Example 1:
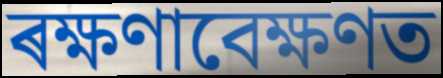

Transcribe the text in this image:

ৰক্ষণাবেক্ষণত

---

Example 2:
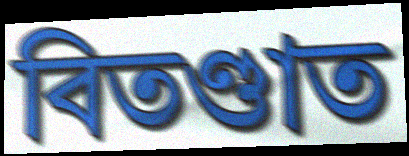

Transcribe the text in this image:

বিতণ্ডাত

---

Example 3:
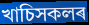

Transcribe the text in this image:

খাচিসকলৰ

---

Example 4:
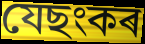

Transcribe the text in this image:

যেছংকৰ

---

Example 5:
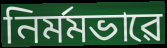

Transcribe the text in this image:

নিৰ্মমভাৱে